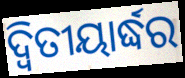
ଦ୍ୱିତୀୟାର୍ଦ୍ଧର